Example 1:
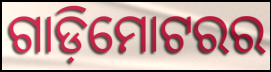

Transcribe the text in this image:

ଗାଡ଼ିମୋଟରର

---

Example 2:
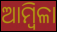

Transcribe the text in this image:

ଆମ୍ବିଳା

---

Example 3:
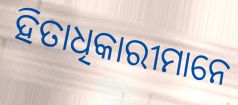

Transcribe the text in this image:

ହିତାଧିକାରୀମାନେ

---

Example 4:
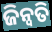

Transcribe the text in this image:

ଜିନ୍ୱତି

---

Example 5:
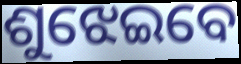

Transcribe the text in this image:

ଶୁଝେଇବେ